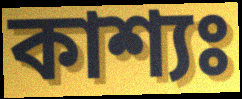
কাশ্যঃ